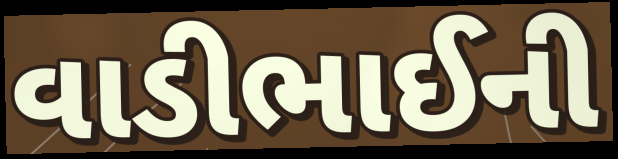
વાડીભાઈની